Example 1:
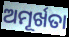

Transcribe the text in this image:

ଅମୂର୍ଖତା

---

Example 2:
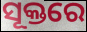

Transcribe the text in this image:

ସୂକ୍ତରେ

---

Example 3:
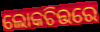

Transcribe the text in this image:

ଲୋକଚିତ୍ତରେ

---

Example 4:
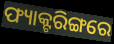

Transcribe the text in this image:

ଫ୍ୟାକ୍ଟରିଙ୍ଗରେ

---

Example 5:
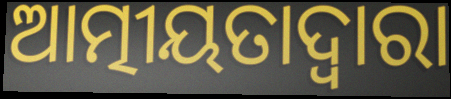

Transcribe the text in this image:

ଆତ୍ମୀୟତାଦ୍ଵାରା